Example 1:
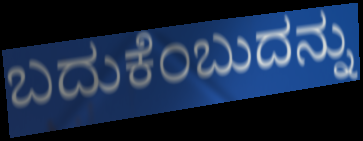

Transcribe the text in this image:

ಬದುಕೆಂಬುದನ್ನು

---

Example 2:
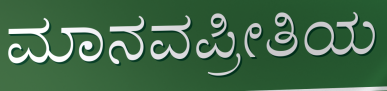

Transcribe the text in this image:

ಮಾನವಪ್ರೀತಿಯ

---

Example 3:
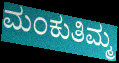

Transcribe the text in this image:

ಮಂಕುತಿಮ್ಮ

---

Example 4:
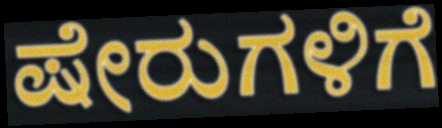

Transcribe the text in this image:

ಷೇರುಗಳಿಗೆ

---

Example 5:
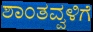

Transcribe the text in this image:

ಶಾಂತವ್ವಳಿಗೆ